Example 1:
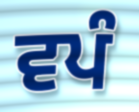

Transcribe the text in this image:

ਵਪੰ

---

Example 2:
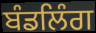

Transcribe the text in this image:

ਬੰਡਲਿੰਗ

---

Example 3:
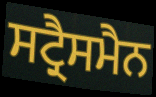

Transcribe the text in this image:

ਸਟ੍ਰੈਸਮੈਨ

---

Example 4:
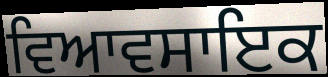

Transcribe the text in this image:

ਵਿਆਵਸਾਇਕ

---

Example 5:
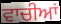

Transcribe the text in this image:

ਵਾਚੀਆਂ